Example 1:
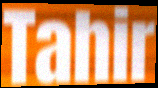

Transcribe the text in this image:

Tahir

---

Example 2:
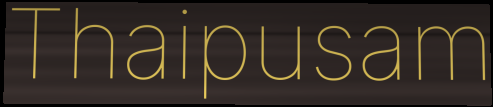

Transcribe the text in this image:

Thaipusam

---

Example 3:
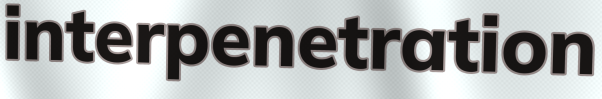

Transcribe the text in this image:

interpenetration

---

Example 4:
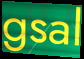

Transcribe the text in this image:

gsal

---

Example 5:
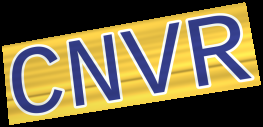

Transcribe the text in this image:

CNVR